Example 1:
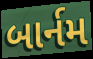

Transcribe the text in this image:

બાર્નમ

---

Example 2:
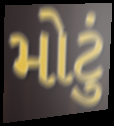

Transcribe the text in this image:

મોટું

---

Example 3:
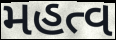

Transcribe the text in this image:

મહત્વ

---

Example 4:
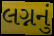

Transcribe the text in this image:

લગ્નનું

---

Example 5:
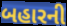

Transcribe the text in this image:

બહારની